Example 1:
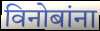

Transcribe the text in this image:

विनोबांना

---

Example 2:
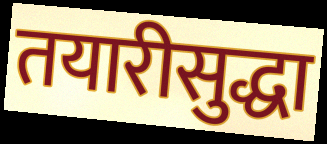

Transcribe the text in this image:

तयारीसुद्धा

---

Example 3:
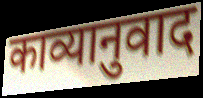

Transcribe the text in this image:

काव्यानुवाद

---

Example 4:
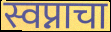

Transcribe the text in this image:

स्वप्नाचा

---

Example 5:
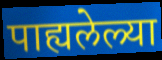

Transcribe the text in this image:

पाह्यलेल्या